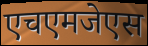
एचएमजेएस